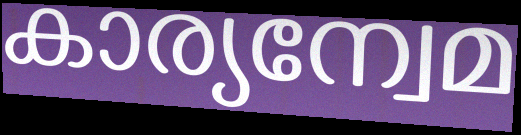
കാര്യന്വേമ